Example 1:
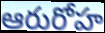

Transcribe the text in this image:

ఆరురోహ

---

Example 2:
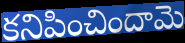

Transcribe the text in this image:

కనిపించిందామె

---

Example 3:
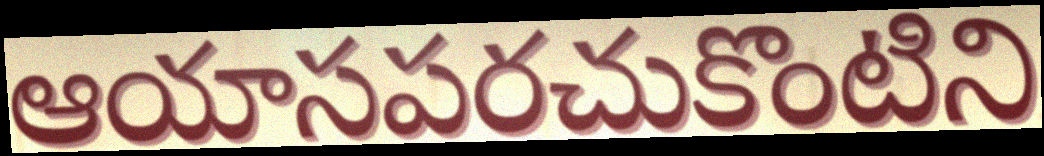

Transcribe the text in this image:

ఆయాసపరచుకొంటిని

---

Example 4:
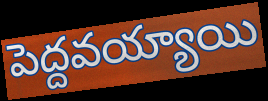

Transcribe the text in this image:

పెద్దవయ్యాయి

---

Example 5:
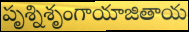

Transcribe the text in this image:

పృశ్నిశృంగాయాజితాయ